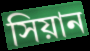
সিয়ান